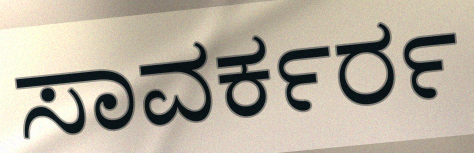
ಸಾವರ್ಕರ್ರ